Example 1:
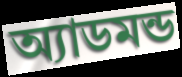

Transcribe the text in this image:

অ্যাডমন্ড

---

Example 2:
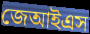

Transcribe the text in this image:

জেআইএস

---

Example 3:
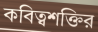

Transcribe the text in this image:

কবিত্বশক্তির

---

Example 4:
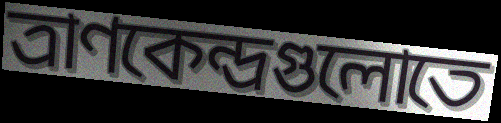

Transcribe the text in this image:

ত্রাণকেন্দ্রগুলোতে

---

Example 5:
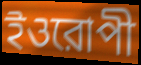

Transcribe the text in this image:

ইওরোপী